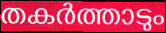
തകർത്താടും